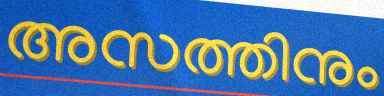
അസത്തിനും